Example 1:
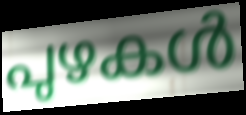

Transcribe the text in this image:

പുഴകൾ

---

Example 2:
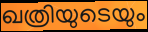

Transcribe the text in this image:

ഖത്രിയുടെയും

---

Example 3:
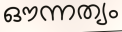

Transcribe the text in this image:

ഔന്നത്യം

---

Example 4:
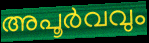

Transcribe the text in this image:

അപൂർവവും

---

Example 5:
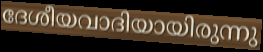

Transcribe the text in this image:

ദേശീയവാദിയായിരുന്നു